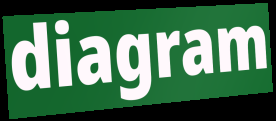
diagram